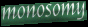
monosomy